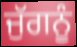
ਜੁੱਗਨੂੰ